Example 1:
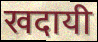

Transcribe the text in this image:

खदायी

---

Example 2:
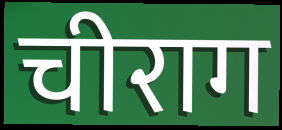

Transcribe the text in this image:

चीराग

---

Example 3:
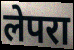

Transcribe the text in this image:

लेपरा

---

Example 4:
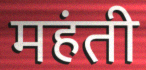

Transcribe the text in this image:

महंती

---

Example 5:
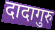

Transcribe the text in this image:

दादागुरु